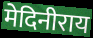
मेदिनीराय